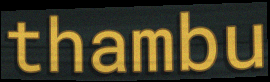
thambu